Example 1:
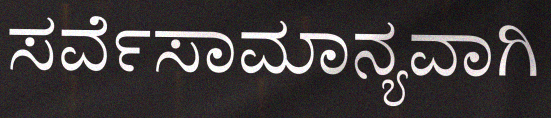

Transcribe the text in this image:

ಸರ್ವೆಸಾಮಾನ್ಯವಾಗಿ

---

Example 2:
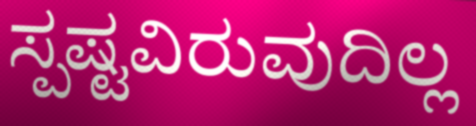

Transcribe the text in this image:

ಸ್ಪಷ್ಟವಿರುವುದಿಲ್ಲ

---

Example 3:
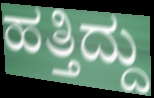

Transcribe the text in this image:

ಹತ್ತಿದ್ದು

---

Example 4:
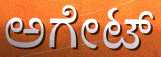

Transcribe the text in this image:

ಅಗೇಟ್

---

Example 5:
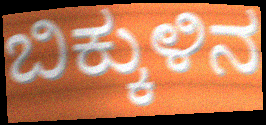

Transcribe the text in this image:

ಬಿಕ್ಕುಳಿನ